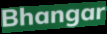
Bhangar